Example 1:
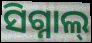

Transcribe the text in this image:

ସିଗ୍ନାଲ୍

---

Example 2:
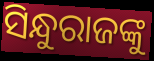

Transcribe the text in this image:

ସିନ୍ଧୁରାଜଙ୍କୁ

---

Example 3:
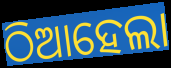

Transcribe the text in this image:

ଠିଆହେଲା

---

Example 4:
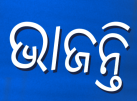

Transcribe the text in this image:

ଭାଜନ୍ତି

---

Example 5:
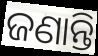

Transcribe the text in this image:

ଜଣାନ୍ତି